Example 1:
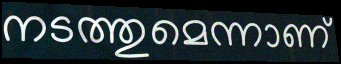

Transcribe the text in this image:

നടത്തുമെന്നാണ്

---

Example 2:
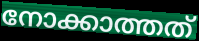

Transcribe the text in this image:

നോക്കാത്തത്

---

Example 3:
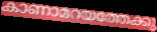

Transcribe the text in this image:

കാണാമറയത്തേക്കു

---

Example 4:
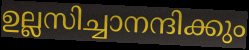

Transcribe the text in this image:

ഉല്ലസിച്ചാനന്ദിക്കും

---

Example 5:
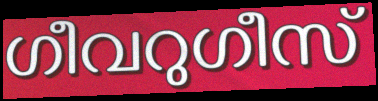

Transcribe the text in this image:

ഗീവറുഗീസ്